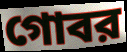
গোবর